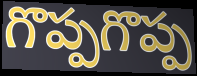
గొప్పగొప్ప